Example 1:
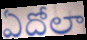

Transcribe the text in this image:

ఏదోలా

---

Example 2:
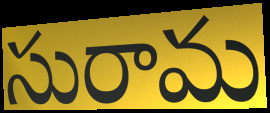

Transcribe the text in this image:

సురామ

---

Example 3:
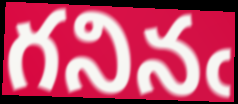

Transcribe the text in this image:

గనినఁ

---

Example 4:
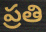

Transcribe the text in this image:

ప్రతి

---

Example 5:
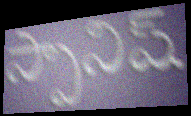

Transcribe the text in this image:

స్పానిష్